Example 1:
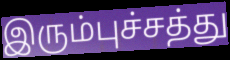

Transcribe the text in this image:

இரும்புச்சத்து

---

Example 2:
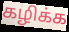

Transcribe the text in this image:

கழிக்க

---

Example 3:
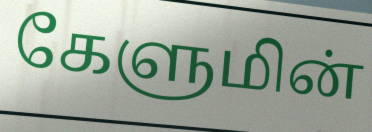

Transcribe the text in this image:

கேளுமின்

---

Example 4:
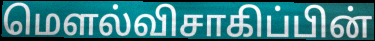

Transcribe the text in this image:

மௌல்விசாகிப்பின்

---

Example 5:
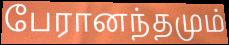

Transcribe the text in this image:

பேரானந்தமும்